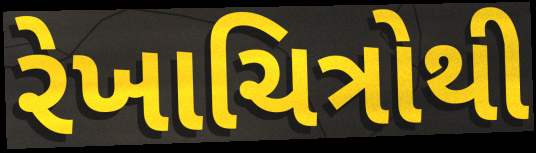
રેખાચિત્રોથી